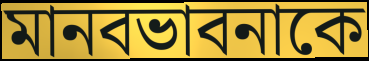
মানবভাবনাকে